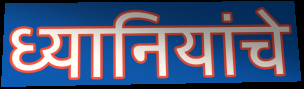
ध्यानियांचे